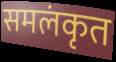
समलंकृत